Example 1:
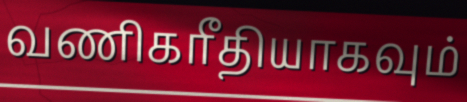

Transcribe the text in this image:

வணிகரீதியாகவும்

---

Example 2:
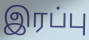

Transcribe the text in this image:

இரப்பு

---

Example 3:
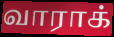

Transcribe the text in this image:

வாராக்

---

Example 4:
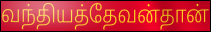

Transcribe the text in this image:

வந்தியத்தேவன்தான்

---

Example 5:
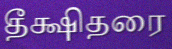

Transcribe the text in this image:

தீக்ஷிதரை